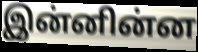
இன்னின்ன